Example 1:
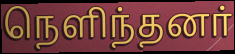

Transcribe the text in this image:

நெளிந்தனர்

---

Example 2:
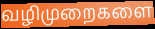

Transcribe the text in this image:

வழிமுறைகளை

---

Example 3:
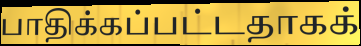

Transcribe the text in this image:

பாதிக்கப்பட்டதாகக்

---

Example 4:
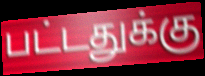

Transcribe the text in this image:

பட்டதுக்கு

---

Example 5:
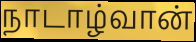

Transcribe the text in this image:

நாடாழ்வான்